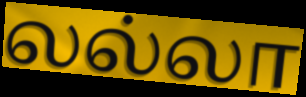
லல்லா